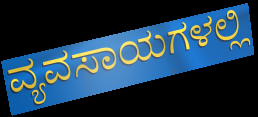
ವ್ಯವಸಾಯಗಳಲ್ಲಿ